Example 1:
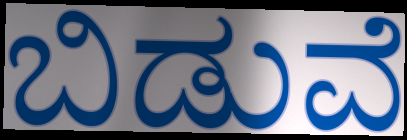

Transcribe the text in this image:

ಬಿಡುವೆ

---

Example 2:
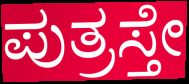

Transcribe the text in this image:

ಪುತ್ರಸ್ತೇ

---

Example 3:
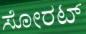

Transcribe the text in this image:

ಸೋರಟ್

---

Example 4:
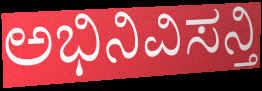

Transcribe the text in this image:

ಅಭಿನಿವಿಸನ್ತಿ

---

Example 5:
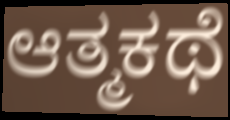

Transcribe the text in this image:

ಆತ್ಮಕಥೆ